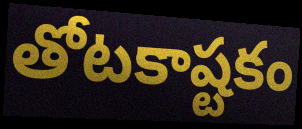
తోటకాష్టకం